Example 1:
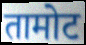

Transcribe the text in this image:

तामोट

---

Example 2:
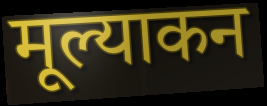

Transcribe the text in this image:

मूल्याकन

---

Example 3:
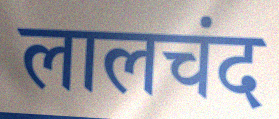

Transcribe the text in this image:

लालचंद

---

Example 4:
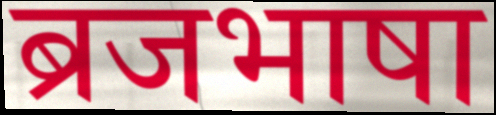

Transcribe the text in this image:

ब्रजभाषा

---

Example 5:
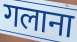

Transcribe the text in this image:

गलाना